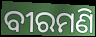
ବୀରମଣି